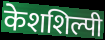
केशशिल्पी